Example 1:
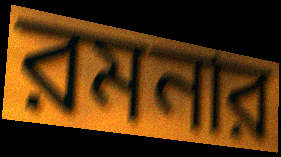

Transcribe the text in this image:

রমনার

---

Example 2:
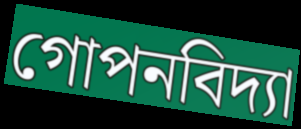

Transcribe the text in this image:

গোপনবিদ্যা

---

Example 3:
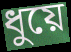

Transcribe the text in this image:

ধুয়ে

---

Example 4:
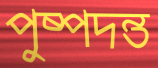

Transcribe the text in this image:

পুষ্পদন্ত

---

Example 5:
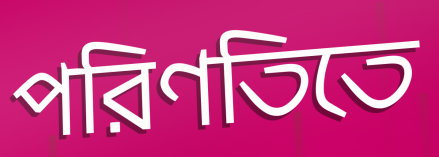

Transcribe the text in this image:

পরিণতিতে